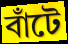
বাঁটে